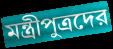
মন্ত্রীপুত্রদের